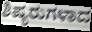
ಶಿಷ್ಯರುಗಳಾದ